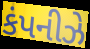
કંપનીઝે